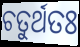
ଚତୁର୍ଥତଃ